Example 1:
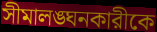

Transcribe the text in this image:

সীমালঙ্ঘনকারীকে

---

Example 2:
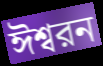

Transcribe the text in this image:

ঈশ্বরন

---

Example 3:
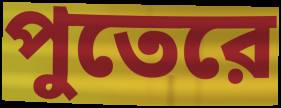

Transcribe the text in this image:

পুতেরে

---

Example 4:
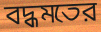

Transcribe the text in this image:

বদ্ধমতের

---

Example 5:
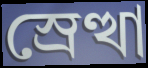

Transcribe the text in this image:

স্রেত্থা